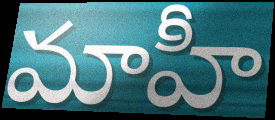
మాహీ